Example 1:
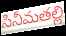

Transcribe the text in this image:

సినీమతల్లి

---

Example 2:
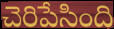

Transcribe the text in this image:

చెరిపేసింది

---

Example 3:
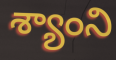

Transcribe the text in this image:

శ్యాంని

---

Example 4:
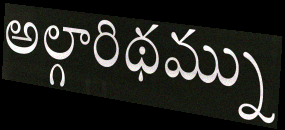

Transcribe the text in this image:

అల్గారిథమ్ను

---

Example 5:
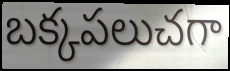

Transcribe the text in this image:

బక్కపలుచగా